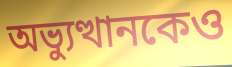
অভ্যুত্থানকেও